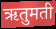
ऋतुमती